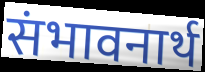
संभावनार्थ